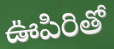
ఊపిరితో